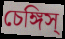
চেঙ্গিস্